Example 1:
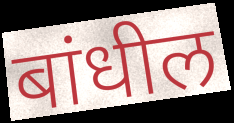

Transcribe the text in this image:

बांधील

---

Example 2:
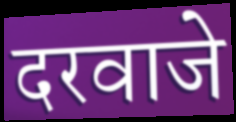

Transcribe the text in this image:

दरवाजे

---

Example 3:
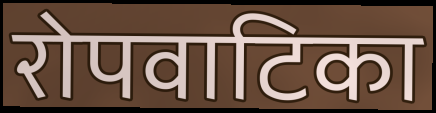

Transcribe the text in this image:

रोपवाटिका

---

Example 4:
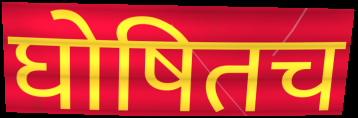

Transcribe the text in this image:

घोषितच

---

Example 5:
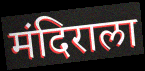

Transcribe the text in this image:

मंदिराला